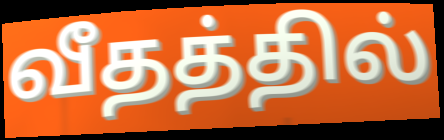
வீதத்தில்